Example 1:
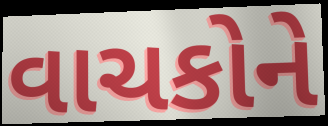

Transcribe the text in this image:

વાચકોને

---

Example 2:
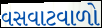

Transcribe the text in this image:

વસવાટવાળો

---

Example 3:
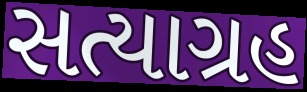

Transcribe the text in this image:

સત્યાગ્રહ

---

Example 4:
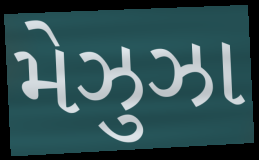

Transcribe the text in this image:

મેઝુઝા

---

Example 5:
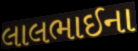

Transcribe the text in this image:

લાલભાઈના